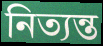
নিত্যন্ত